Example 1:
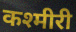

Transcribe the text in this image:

कश्मीरी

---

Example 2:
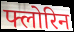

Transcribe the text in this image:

फ्लोरिन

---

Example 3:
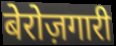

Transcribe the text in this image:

बेरोज़गारी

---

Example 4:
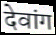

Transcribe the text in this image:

देवांग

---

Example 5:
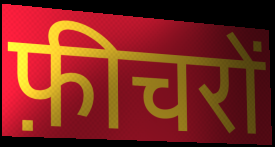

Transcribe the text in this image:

फ़ीचरों